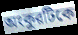
অংকুরটিকে